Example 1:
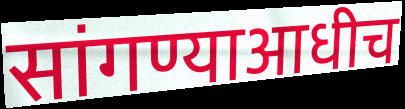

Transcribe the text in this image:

सांगण्याआधीच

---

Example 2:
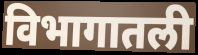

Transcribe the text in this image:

विभागातली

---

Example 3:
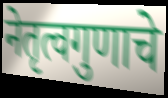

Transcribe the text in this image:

नेतृत्वगुणाचे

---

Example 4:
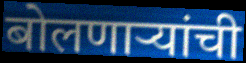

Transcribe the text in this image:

बोलणाऱ्यांची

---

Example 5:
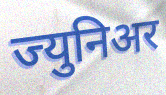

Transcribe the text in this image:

ज्युनिअर